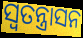
ସ୍ଵତନ୍ତ୍ରାସନ